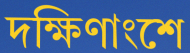
দক্ষিণাংশে